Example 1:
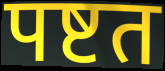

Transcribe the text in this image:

पष्टत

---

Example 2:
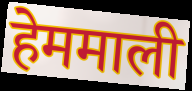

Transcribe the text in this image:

हेममाली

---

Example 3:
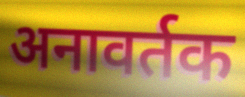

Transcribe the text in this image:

अनावर्तक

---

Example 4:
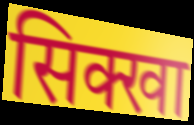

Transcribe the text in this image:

सिक्खा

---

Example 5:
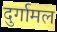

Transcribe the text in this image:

दुर्गामल